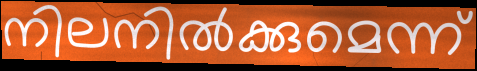
നിലനിൽക്കുമെന്ന്